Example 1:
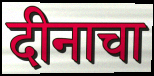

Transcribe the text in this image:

दीनाचा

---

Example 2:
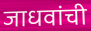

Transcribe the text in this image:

जाधवांची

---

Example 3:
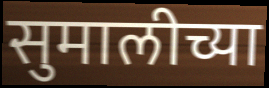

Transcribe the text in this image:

सुमालीच्या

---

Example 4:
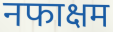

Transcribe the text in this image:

नफाक्षम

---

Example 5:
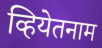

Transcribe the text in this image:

व्हियेतनाम